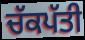
ਚੱਕਪੱਤੀ